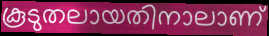
കൂടുതലായതിനാലാണ്